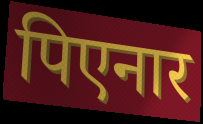
पिएनार